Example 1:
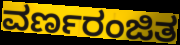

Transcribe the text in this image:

ವರ್ಣರಂಜಿತ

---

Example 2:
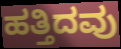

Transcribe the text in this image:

ಹತ್ತಿದವು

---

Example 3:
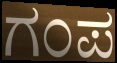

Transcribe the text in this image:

ಗಂಪ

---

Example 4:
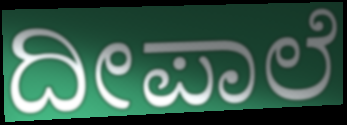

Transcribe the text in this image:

ದೀಪಾಲೆ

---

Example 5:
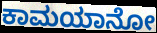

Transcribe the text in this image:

ಕಾಮಯಾನೋ